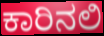
ಕಾರಿನಲಿ